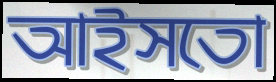
আইসতো